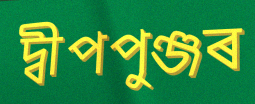
দ্বীপপুঞ্জৰ